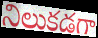
నిలుకడగా